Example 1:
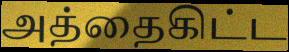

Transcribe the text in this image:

அத்தைகிட்ட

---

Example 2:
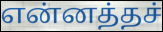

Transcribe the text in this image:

என்னத்தச்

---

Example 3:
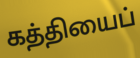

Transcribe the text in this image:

கத்தியைப்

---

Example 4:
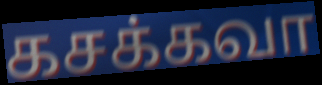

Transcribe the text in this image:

கசக்கவா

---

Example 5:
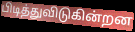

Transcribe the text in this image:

பிடித்துவிடுகின்றன